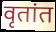
वृतांत